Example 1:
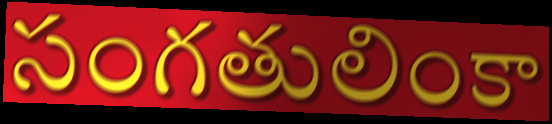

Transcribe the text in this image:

సంగతులింకా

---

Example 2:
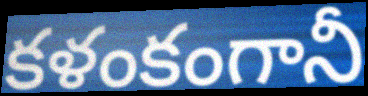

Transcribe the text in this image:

కళంకంగానీ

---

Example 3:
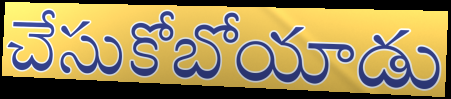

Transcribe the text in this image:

చేసుకోబోయాడు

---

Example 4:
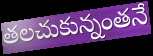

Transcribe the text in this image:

తలచుకున్నంతనే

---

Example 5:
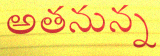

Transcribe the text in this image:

అతనున్న